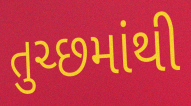
તુચ્છમાંથી